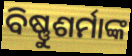
ବିଷ୍ଣୁଶର୍ମାଙ୍କ